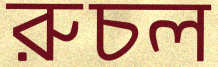
রুচল